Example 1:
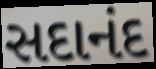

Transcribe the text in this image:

સદાનંદ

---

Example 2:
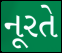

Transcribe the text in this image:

નૂરતે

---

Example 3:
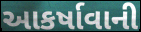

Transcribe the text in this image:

આકર્ષાવાની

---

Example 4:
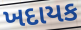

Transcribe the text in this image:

ખદાયક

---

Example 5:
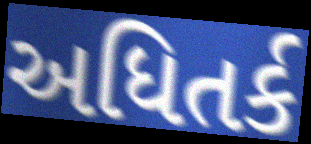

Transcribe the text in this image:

અધિતર્ક